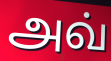
அவ்